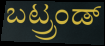
ಬಟ್ರ್ರಂಡ್